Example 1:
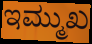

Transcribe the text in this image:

ಇಮ್ಮುಖ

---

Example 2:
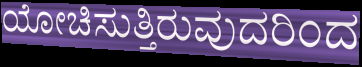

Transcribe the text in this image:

ಯೋಚಿಸುತ್ತಿರುವುದರಿಂದ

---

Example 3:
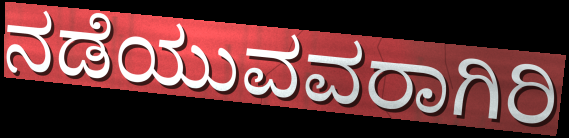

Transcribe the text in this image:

ನಡೆಯುವವರಾಗಿರಿ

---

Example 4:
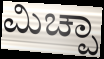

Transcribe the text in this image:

ಮಿಚ್ಪಾ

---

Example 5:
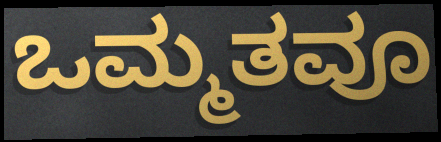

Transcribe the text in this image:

ಒಮ್ಮತವೂ